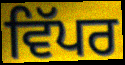
ਵਿੱਪਰ